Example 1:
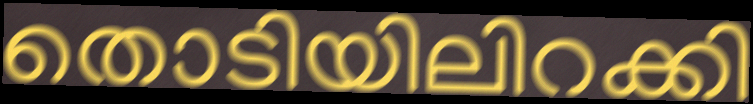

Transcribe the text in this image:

തൊടിയിലിറക്കി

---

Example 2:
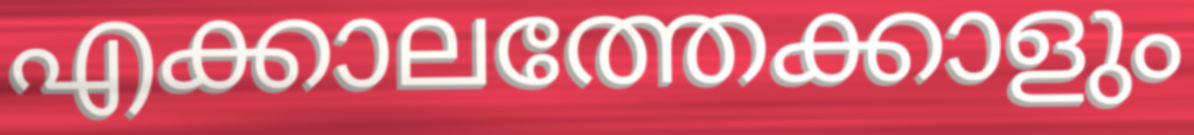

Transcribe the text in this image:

എക്കാലത്തേക്കാളും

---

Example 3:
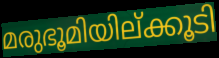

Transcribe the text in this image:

മരുഭൂമിയില്ക്കൂടി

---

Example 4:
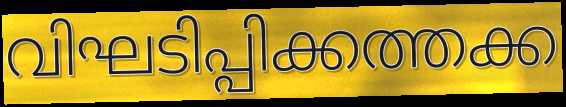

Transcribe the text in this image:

വിഘടിപ്പിക്കത്തക്ക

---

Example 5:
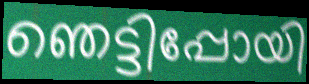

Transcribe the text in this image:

ഞെട്ടിപ്പോയി